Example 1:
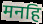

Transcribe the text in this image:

मनहि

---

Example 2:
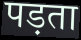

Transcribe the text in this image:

पड़ता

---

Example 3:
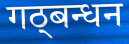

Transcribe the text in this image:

गठ्बन्धन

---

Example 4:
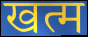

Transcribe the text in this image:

खत्म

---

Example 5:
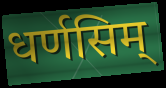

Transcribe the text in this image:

धर्णसिम्